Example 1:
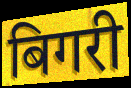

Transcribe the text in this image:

बिगरी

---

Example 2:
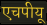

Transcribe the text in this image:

एचपीयू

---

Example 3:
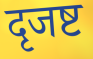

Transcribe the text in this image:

दृजष्ट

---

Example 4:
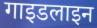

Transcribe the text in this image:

गाइडलाइन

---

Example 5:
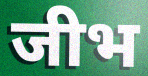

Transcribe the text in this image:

जीभ